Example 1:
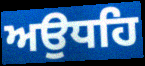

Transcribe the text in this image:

ਅਉਧਹਿ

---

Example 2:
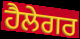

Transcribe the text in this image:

ਹੈਲੇਗਰ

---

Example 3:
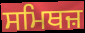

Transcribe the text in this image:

ਸਮਿਥਜ਼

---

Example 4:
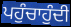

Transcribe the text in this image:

ਪਹੁੰਚਾਹੁੰਦੀ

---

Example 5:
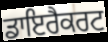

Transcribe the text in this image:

ਡਾਇਰੈਕਰਟ